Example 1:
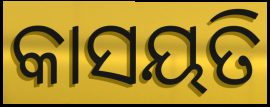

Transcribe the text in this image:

କାସୟତି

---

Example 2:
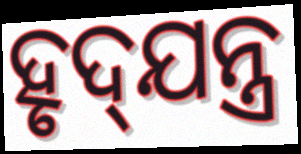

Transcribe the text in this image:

ହୃଦ୍‌ଯନ୍ତ୍ର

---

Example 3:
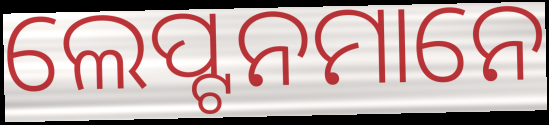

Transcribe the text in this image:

ଲେପ୍ଟନମାନେ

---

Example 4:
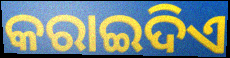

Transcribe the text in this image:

କରାଇଦିଏ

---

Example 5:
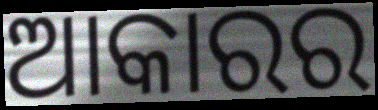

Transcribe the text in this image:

ଆକାରର